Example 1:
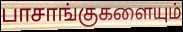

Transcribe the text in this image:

பாசாங்குகளையும்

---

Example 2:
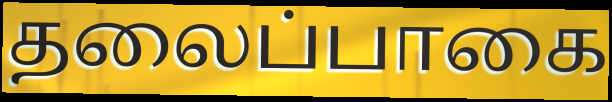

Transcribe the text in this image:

தலைப்பாகை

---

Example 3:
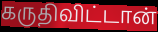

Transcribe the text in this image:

கருதிவிட்டான்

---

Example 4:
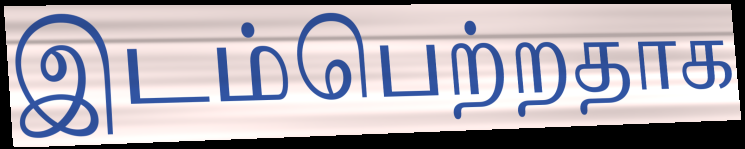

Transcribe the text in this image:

இடம்பெற்றதாக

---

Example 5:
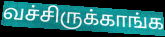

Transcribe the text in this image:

வச்சிருக்காங்க